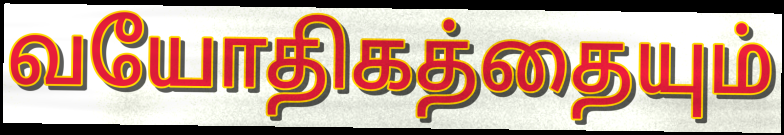
வயோதிகத்தையும்